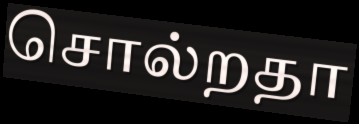
சொல்றதா